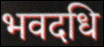
भवदधि